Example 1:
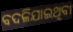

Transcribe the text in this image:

ବଦଳିଯାଇଥିବା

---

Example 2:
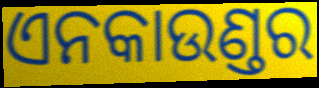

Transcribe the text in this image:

ଏନକାଉଣ୍ଡର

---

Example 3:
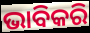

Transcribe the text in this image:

ଭାବିକରି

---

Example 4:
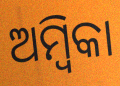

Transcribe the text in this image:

ଅମ୍ବିକା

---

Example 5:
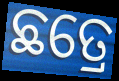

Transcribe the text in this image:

ଛତ୍ରେ